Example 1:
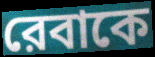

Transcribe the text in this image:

রেবাকে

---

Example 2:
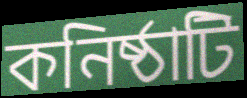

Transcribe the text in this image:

কনিষ্ঠাটি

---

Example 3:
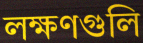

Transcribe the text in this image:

লক্ষণগুলি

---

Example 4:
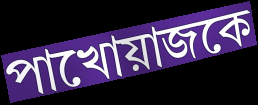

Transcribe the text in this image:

পাখোয়াজকে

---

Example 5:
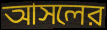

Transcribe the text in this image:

আসলের